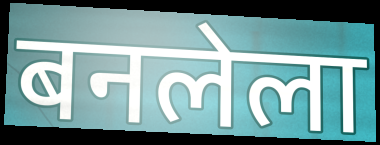
बनलेला